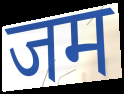
जम